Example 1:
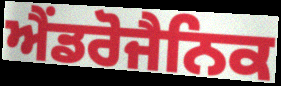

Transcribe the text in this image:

ਐਂਡਰੋਜੈਨਿਕ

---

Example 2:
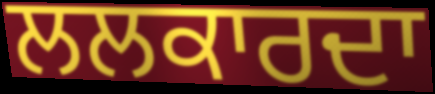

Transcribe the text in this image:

ਲਲਕਾਰਦਾ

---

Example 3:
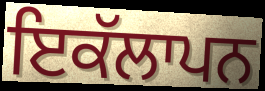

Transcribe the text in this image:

ਇਕੱਲਾਪਨ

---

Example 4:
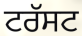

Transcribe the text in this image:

ਟਰੱਸਟ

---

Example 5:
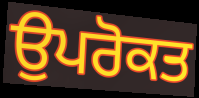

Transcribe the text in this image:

ਉਪਰੋਕਤ